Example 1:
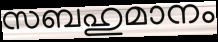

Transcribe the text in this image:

സബഹുമാനം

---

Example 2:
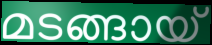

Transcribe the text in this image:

മടങ്ങായ്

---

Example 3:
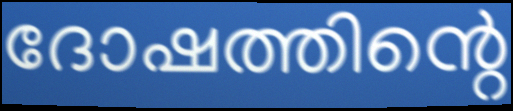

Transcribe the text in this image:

ദോഷത്തിന്റെ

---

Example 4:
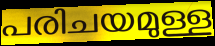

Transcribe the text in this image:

പരിചയമുള്ള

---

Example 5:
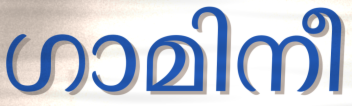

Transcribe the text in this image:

ഗാമിനീ